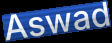
Aswad